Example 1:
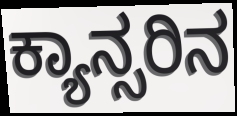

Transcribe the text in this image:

ಕ್ಯಾನ್ಸರಿನ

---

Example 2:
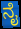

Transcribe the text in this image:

ನೈ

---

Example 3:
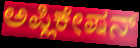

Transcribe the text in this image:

ಅಪ್ಲಿಕೇಷನ್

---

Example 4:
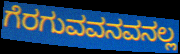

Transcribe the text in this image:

ಗೆರಗುವವನವನಲ್ಲ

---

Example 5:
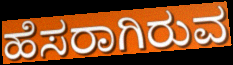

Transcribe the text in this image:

ಹೆಸರಾಗಿರುವ